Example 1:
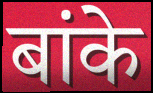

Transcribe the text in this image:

बांके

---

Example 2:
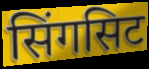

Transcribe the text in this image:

सिंगसिट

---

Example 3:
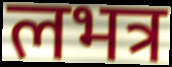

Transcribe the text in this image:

लभत्र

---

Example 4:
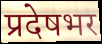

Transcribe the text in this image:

प्रदेषभर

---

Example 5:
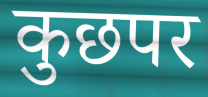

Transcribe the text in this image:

कुछपर